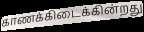
காணக்கிடைக்கின்றது